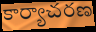
కార్యాచరణ